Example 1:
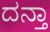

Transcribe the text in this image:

ದನ್ತಾ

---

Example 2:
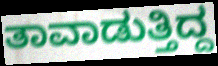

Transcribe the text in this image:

ತಾವಾಡುತ್ತಿದ್ದ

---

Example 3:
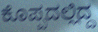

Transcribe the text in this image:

ಕೊಪ್ಪದಲ್ಲಿದ್ದ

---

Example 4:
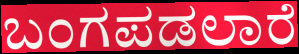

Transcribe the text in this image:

ಬಂಗಪಡಲಾರೆ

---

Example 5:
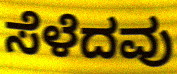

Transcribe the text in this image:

ಸೆಳೆದವು